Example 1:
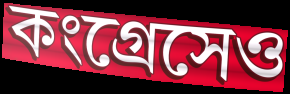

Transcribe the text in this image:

কংগ্রেসেও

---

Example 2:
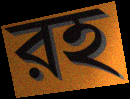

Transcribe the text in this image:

রহ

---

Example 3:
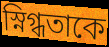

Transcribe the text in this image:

স্নিগ্ধতাকে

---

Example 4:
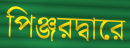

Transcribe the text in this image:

পিঞ্জরদ্বারে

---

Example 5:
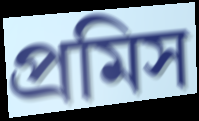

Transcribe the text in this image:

প্রমিস